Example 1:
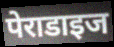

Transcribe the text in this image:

पेराडाइज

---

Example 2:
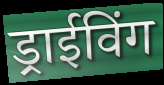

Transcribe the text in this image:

ड्राईविंग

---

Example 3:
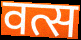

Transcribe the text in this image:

वत्स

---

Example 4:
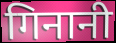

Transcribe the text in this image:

गिनानी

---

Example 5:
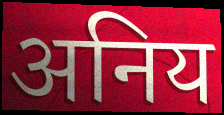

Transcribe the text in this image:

अनिय